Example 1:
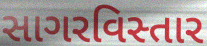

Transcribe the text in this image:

સાગરવિસ્તાર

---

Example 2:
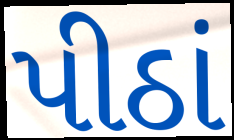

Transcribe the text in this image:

પીઠાં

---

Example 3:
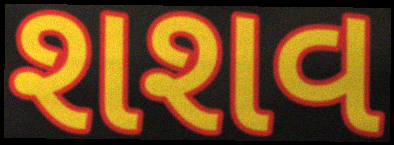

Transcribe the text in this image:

શશવ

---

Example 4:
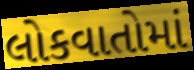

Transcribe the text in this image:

લોકવાતોમાં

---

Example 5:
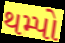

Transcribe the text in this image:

થમ્પો